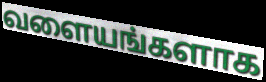
வளையங்களாக